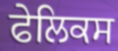
ਫੇਲਿਕਸ